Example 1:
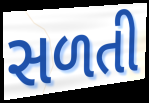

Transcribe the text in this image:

સળતી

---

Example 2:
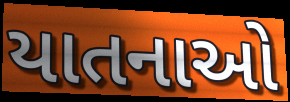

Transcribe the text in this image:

યાતનાઓ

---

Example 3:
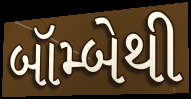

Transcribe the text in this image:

બૉમ્બેથી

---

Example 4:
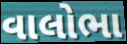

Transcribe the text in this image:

વાલોભા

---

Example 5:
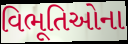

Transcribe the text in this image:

વિભૂતિઓના